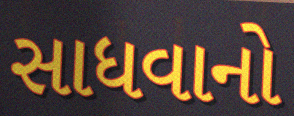
સાધવાનો